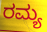
ರಮ್ಯ